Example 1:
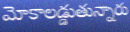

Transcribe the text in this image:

మోకాలడ్డుతున్నారు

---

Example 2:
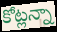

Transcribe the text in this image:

కోట్లన్నా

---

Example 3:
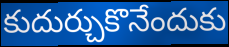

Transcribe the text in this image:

కుదుర్చుకొనేందుకు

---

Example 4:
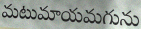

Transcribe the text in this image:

మటుమాయమగును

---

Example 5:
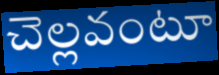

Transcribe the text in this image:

చెల్లవంటూ